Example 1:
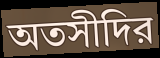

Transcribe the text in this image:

অতসীদির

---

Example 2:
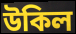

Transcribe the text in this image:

উকিল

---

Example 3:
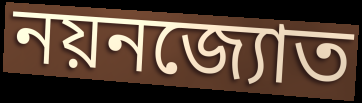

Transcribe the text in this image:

নয়নজ্যোত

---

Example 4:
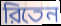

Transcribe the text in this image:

রিতেন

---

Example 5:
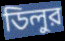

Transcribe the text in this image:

ডিলুর